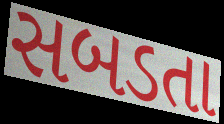
સબડતા